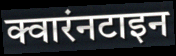
क्वारंनटाइन